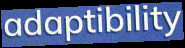
adaptibility